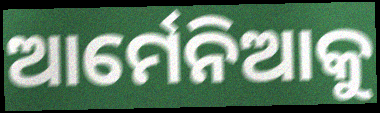
ଆର୍ମେନିଆକୁ